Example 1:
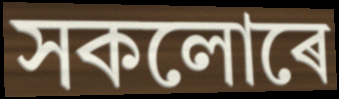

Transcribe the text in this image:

সকলোৰে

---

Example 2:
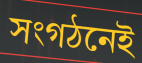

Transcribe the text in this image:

সংগঠনেই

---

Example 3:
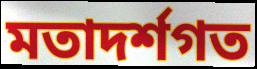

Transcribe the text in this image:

মতাদৰ্শগত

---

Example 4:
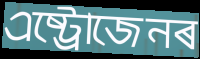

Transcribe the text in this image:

এষ্ট্ৰোজেনৰ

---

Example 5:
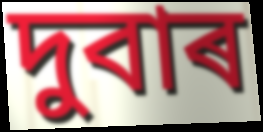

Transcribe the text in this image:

দুবাৰ